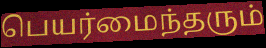
பெயர்மைந்தரும்